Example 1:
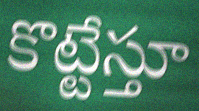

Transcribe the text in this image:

కొట్టేస్తూ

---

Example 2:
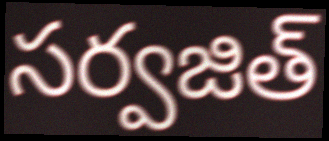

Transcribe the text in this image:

సర్వజిత్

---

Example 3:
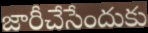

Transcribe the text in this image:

జారీచేసేందుకు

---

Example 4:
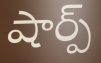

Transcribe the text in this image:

షార్ప్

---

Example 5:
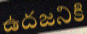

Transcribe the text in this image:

ఉదజనికి